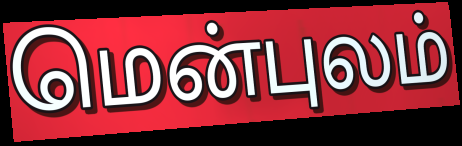
மென்புலம்